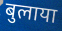
बुलाया